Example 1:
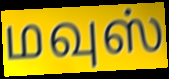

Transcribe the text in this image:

மவுஸ்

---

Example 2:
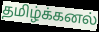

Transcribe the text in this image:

தமிழ்க்கனல்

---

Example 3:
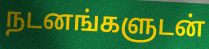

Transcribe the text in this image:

நடனங்களுடன்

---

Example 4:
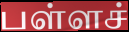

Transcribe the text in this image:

பள்ளச்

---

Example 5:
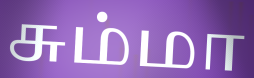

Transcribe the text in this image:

சும்மா